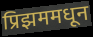
प्रिझममधून